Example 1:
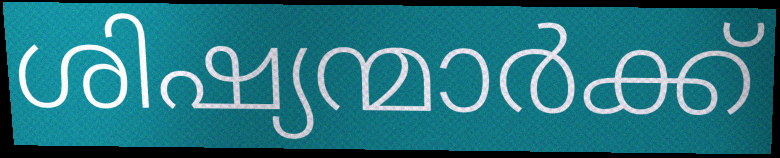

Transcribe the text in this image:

ശിഷ്യന്മാർക്ക്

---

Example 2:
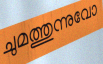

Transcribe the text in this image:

ചുമത്തുന്നുവോ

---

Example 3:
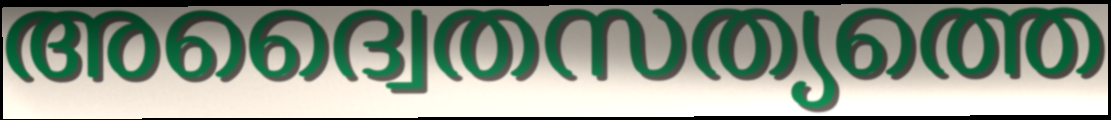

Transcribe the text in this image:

അദ്വൈതസത്യത്തെ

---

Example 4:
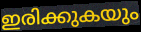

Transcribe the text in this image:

ഇരിക്കുകയും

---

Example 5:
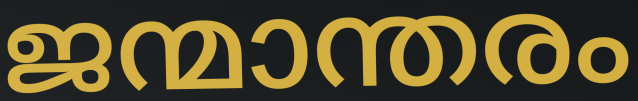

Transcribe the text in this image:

ജന്മാന്തരം